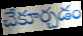
చేకూర్చడం